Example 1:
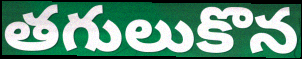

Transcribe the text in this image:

తగులుకొన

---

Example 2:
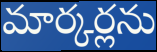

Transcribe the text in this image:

మార్కర్లను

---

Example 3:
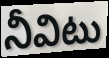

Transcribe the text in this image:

నీవిటు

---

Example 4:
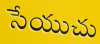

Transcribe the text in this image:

సేయుచు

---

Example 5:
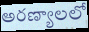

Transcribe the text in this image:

అరణ్యాలలో